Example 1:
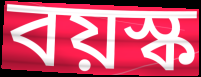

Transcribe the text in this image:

বয়স্ক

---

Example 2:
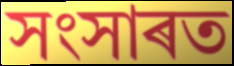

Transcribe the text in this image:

সংসাৰত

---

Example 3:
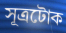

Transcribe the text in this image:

সূত্ৰটোক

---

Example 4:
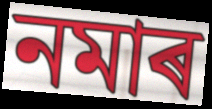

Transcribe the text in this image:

নমাৰ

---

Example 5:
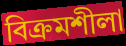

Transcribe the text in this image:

বিক্ৰমশীলা